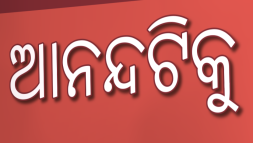
ଆନନ୍ଦଟିକୁ